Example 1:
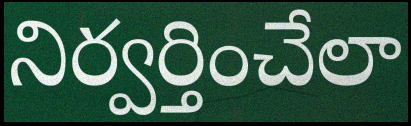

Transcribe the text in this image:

నిర్వర్తించేలా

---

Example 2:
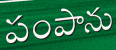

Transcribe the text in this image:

పంపాను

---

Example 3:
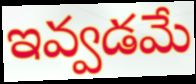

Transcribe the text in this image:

ఇవ్వడమే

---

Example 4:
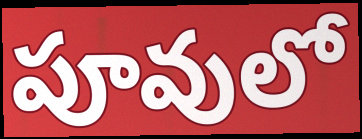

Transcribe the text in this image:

పూవులో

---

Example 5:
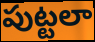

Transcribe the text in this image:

పుట్టలా